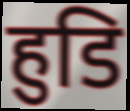
हुडि